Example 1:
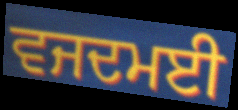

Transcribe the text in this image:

ਵਜਦਮਈ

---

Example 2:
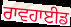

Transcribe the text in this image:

ਰਾਵਹਾਈਡ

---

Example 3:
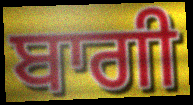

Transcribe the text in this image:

ਬਾਗੀ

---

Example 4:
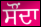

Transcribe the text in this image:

ਸੌਂਦਾ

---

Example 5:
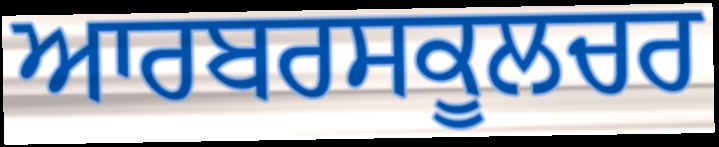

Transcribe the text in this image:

ਆਰਬਰਸਕੂਲਚਰ